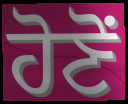
ਹੋਣੋਂ